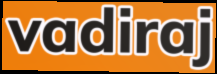
vadiraj